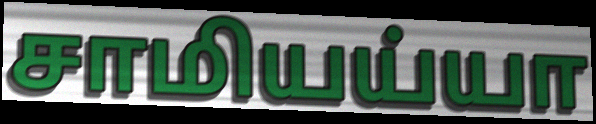
சாமியய்யா